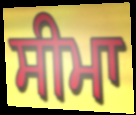
ਸੀਮਾ